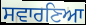
ਸਵਾਰਣਿਆ